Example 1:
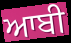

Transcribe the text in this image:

ਆਬੀ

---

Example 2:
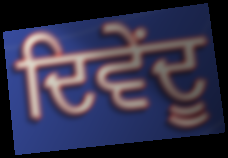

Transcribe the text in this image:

ਦਿਵੇਂਦੂ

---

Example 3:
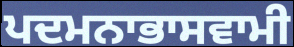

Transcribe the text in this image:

ਪਦਮਨਾਭਾਸਵਾਮੀ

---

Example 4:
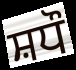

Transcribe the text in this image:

ਸ਼ਧੌ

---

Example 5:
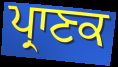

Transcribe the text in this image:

ਪ੍ਰਾਣਕ